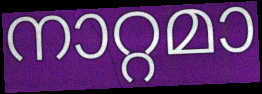
നാറ്റമാ